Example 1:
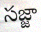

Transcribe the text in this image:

సజ్జా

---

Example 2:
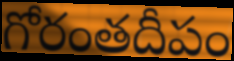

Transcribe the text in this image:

గోరంతదీపం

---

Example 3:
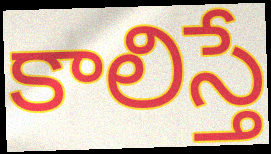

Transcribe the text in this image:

కాలిస్తే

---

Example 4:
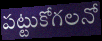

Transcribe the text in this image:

పట్టుకోగలనో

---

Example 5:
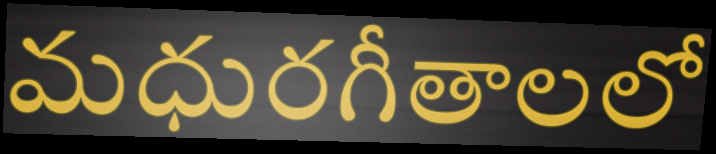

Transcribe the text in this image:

మధురగీతాలలో